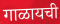
गाळायची